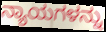
ನ್ಯಾಯಗಳನ್ನು